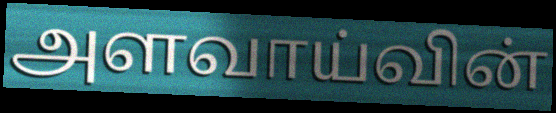
அளவாய்வின்